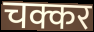
चक्‍कर